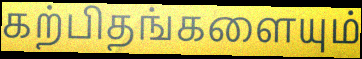
கற்பிதங்களையும்